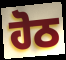
ਹੋਠ